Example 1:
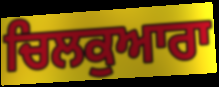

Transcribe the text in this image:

ਚਿਲਕੁਆਰਾ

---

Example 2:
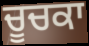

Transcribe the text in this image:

ਚੂਚਕਾ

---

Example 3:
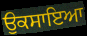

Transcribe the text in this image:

ਉਕਸਾਇਆ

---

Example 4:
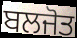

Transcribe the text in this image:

ਬਲਜੋਤ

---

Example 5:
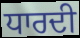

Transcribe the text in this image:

ਧਾਰਦੀ